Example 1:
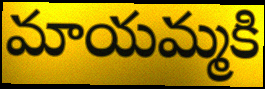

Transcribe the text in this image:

మాయమ్మకి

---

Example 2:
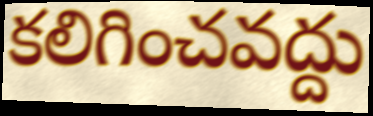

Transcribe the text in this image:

కలిగించవద్దు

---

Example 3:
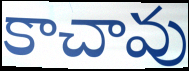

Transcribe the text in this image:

కాచావు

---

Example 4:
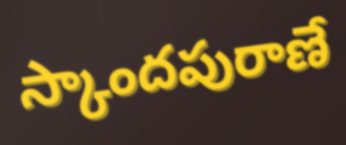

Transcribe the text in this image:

స్కాందపురాణే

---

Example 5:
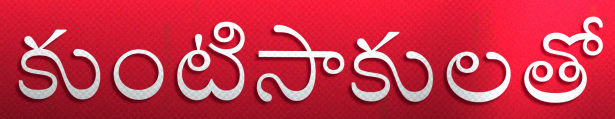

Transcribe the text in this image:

కుంటిసాకులతో